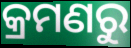
କ୍ରମଣରୁ